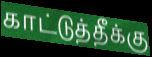
காட்டுத்தீக்கு